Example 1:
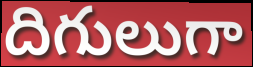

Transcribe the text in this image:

దిగులుగా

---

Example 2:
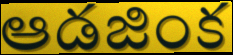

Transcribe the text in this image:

ఆడజింక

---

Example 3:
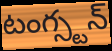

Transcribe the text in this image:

టంగ్స్టన్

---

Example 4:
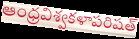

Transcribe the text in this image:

ఆంధ్రవిశ్వకళాపరిషత్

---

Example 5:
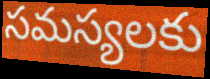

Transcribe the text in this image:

సమస్యలకు